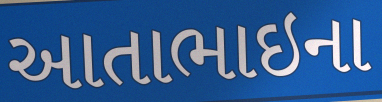
આતાભાઇના